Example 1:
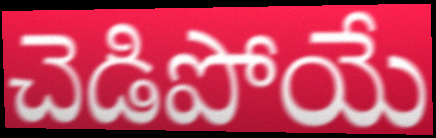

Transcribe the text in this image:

చెడిపోయే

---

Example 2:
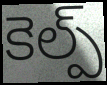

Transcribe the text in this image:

కెల్ప్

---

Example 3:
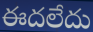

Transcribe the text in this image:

ఈదలేదు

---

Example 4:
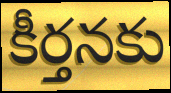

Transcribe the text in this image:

కీర్తనకు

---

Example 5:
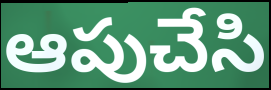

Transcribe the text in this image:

ఆపుచేసి